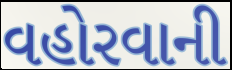
વહોરવાની